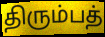
திரும்பத்